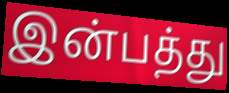
இன்பத்து